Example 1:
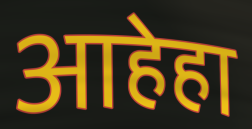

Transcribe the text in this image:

आहेहा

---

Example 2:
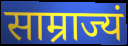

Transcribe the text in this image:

साम्राज्यं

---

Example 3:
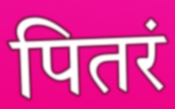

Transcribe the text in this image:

पितरं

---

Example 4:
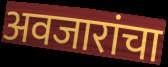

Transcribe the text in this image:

अवजारांचा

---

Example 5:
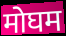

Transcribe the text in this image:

मोघम